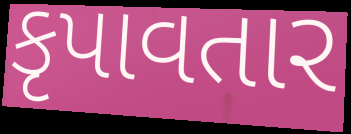
કૃપાવતાર